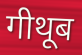
गीथूब